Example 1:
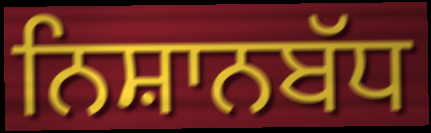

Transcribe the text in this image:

ਨਿਸ਼ਾਨਬੱਧ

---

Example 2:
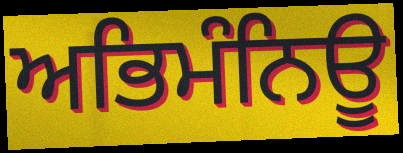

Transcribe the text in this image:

ਅਭਿਮੰਨਿਊ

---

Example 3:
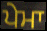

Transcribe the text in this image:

ਪੇਮਾ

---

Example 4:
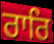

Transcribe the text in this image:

ਰਾਰਿ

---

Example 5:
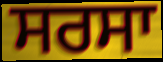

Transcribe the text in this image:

ਸਰਸਾ